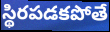
స్థిరపడకపోతే